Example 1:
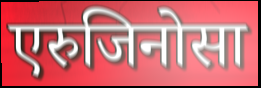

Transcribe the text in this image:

एरुजिनोसा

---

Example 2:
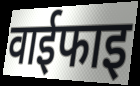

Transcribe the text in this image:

वाईफाइ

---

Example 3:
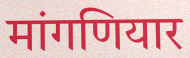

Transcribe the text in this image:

मांगणियार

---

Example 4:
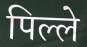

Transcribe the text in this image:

पिल्ले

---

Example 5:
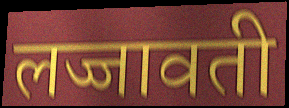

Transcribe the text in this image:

लज्जावती